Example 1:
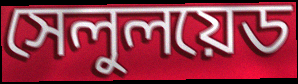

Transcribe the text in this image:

সেলুলয়েড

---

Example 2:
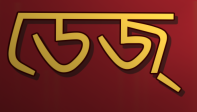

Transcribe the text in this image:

ডেজ্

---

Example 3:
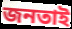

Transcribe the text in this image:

জনতাই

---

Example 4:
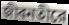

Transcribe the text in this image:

জীবনতীরে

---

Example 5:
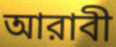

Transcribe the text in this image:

আরাবী